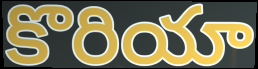
కొరియా